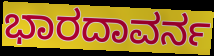
ಭಾರದಾವರ್ನ